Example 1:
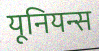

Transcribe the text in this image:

यूनियन्स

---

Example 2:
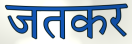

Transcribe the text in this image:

जतकर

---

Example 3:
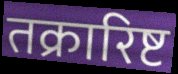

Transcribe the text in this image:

तक्रारिष्ट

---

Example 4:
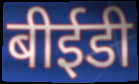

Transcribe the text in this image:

बीईडी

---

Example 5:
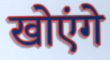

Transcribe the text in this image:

खोएंगे